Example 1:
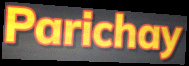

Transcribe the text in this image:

Parichay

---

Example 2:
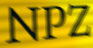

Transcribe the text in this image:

NPZ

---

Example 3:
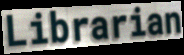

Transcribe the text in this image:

Librarian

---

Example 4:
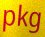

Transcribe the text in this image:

pkg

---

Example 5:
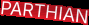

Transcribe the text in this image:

PARTHIAN